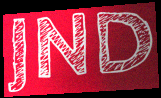
JND